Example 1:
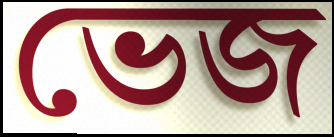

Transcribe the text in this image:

ভেজ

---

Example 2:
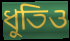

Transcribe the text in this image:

ধুতিও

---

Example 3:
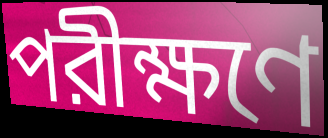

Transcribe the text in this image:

পরীক্ষণে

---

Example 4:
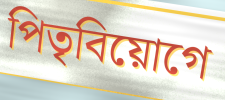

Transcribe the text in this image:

পিতৃবিয়োগে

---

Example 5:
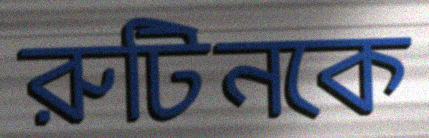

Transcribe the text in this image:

রুটিনকে